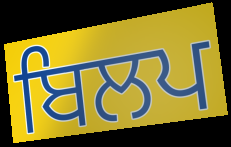
ਬਿਲਪ